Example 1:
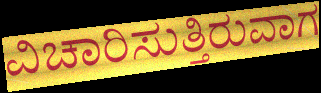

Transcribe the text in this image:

ವಿಚಾರಿಸುತ್ತಿರುವಾಗ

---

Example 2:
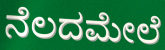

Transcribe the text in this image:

ನೆಲದಮೇಲೆ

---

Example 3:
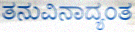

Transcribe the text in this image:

ತನುವಿನಾದ್ಯಂತ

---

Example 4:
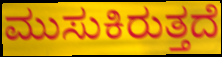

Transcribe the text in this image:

ಮುಸುಕಿರುತ್ತದೆ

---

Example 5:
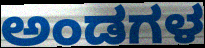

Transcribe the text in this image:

ಅಂಡಗಳ